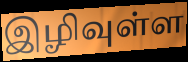
இழிவுள்ள